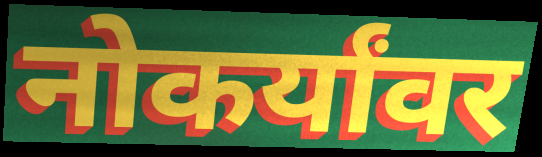
नोकर्यांवर